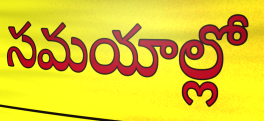
సమయాల్లో